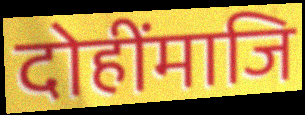
दोहींमाजि